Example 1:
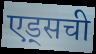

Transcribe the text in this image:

एड्सची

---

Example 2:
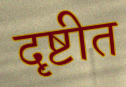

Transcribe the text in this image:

दृष्टीत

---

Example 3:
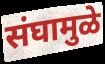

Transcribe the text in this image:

संघामुळे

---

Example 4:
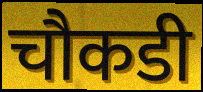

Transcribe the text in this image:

चौकडी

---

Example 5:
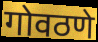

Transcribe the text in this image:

गोवठणे